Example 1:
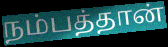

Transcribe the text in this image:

நம்பத்தான்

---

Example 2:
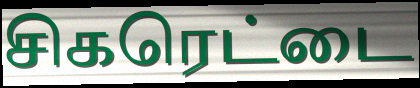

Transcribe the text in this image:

சிகரெட்டை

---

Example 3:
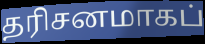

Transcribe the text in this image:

தரிசனமாகப்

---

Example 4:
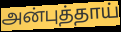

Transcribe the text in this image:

அன்புத்தாய்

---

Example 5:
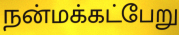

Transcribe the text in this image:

நன்மக்கட்பேறு